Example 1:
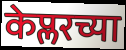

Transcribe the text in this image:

केप्लरच्या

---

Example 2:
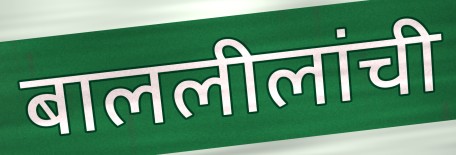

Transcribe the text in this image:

बाललीलांची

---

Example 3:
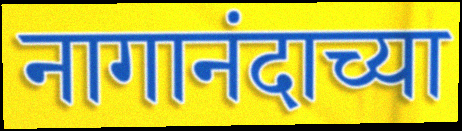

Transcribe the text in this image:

नागानंदाच्या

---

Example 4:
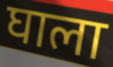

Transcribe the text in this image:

घाला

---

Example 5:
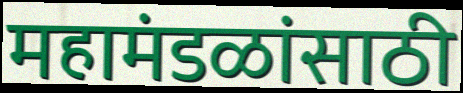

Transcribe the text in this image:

महामंडळांसाठी